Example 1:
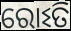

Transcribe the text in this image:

ରୋଽତି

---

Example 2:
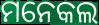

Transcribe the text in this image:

ମନେକଲ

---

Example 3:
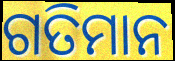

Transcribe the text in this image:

ଗତିମାନ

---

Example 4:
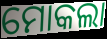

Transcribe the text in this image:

ମୋକଲା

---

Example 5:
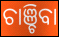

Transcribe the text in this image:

ଚାଞ୍ଚିବା